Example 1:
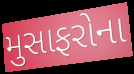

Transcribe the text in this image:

મુસાફરોના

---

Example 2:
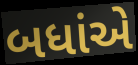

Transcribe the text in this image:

બધાંએ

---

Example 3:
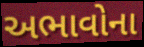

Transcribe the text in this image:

અભાવોના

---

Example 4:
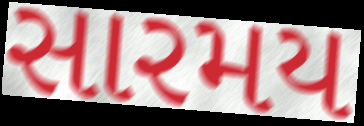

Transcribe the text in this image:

સારમય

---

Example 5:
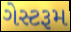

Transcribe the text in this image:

ગેસ્ટરૂમ